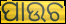
ପାଉଚ